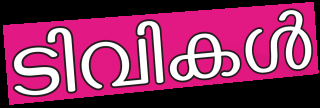
ടിവികൾ